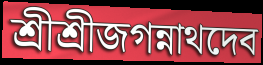
শ্রীশ্রীজগন্নাথদেব